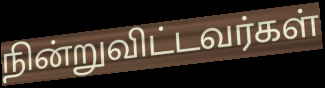
நின்றுவிட்டவர்கள்